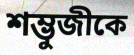
শম্ভুজীকে